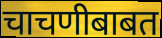
चाचणीबाबत